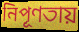
নিপূণতায়